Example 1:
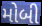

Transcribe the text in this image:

મોબી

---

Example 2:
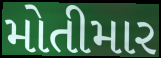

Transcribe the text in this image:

મોતીમાર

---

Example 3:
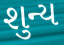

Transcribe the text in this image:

શુન્ય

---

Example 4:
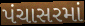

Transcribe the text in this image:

પંચાસરમાં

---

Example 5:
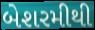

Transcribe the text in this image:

બેશરમીથી